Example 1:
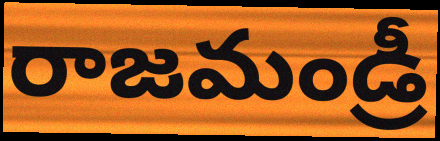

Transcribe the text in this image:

రాజమండ్రీ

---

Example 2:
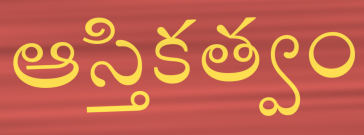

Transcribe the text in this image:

ఆస్తికత్వం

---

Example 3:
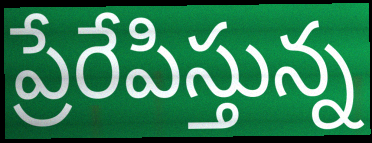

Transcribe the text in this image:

ప్రేరేపిస్తున్న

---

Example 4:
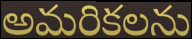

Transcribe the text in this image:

అమరికలను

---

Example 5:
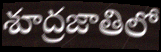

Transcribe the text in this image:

శూద్రజాతిలో